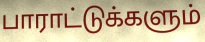
பாராட்டுக்களும்